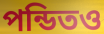
পন্ডিতও